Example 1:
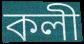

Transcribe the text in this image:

কলী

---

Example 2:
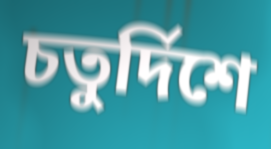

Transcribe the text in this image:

চতুৰ্দিশে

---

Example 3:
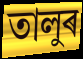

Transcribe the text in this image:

তালুৰ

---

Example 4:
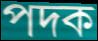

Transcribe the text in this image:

পদক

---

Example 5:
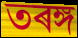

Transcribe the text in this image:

তৰঙ্গ